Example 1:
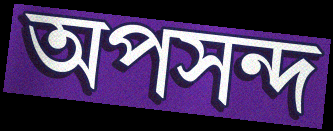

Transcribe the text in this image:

অপসন্দ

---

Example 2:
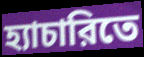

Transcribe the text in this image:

হ্যাচারিতে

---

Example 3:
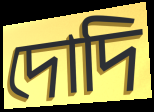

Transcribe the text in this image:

দোদি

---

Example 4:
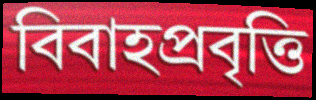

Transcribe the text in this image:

বিবাহপ্রবৃত্তি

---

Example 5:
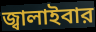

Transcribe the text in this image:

জ্বালাইবার